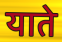
याते